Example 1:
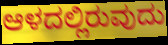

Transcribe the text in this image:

ಆಳದಲ್ಲಿರುವುದು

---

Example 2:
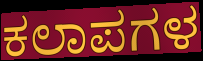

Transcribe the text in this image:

ಕಲಾಪಗಳ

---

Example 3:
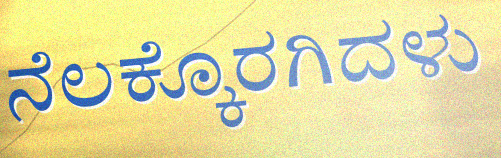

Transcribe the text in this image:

ನೆಲಕ್ಕೊರಗಿದಳು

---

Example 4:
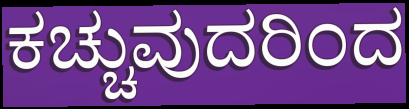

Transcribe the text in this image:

ಕಚ್ಚುವುದರಿಂದ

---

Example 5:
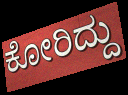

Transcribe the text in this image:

ಕೋರಿದ್ದು